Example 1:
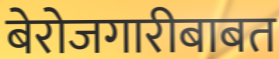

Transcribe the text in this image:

बेरोजगारीबाबत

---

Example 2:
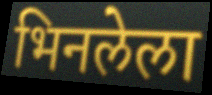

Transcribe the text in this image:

भिनलेला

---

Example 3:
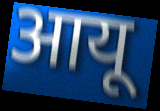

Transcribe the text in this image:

आयू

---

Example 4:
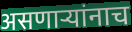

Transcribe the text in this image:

असणार्‍यांनाच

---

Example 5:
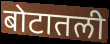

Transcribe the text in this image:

बोटातली